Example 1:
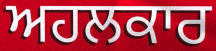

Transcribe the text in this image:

ਅਹਲਕਾਰ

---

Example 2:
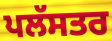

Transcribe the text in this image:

ਪਲੱਸਤਰ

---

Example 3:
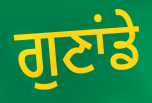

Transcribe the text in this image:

ਗੁਣਾਂਡੇ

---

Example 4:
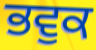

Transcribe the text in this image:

ਭਵੁਕ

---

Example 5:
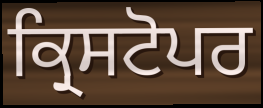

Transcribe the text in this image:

ਕ੍ਰਿਸਟੋਪਰ